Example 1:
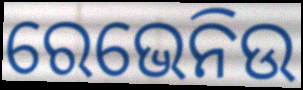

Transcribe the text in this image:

ରେଭେନିଉ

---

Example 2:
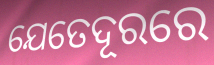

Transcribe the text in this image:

ଯେତେଦୂରରେ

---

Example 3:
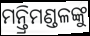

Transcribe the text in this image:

ମନ୍ତ୍ରିମଣ୍ଡଳଙ୍କୁ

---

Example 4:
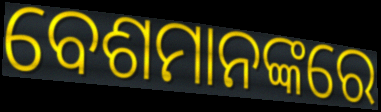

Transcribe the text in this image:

ବେଶମାନଙ୍କରେ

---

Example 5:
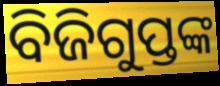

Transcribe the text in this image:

ବିଜିଗୁପ୍ତଙ୍କ